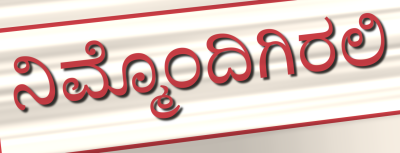
ನಿಮ್ಮೊಂದಿಗಿರಲಿ